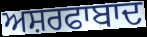
ਅਸ਼ਰਫਾਬਾਦ